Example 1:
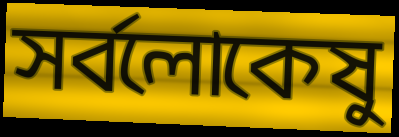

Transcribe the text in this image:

সর্বলোকেষু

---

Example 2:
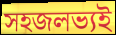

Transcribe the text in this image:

সহজলভ্যই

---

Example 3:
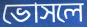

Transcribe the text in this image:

ভোসলে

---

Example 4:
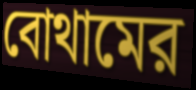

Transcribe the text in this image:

বোথামের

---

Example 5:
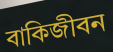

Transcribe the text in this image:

বাকিজীবন